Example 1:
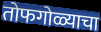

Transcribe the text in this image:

तोफगोळ्याचा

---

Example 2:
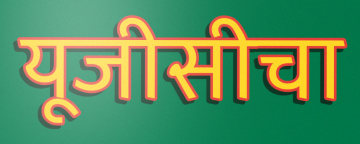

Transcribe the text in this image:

यूजीसीचा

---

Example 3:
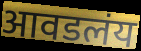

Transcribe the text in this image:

आवडलंय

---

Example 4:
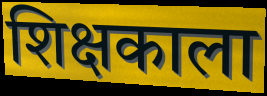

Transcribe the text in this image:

शिक्षकाला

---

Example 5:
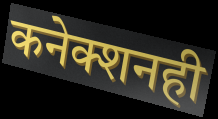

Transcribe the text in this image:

कनेक्शनही